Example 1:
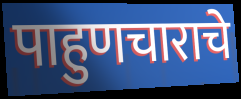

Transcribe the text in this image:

पाहुणचाराचे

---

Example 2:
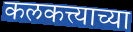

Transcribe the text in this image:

कलकत्त्याच्या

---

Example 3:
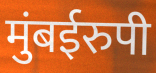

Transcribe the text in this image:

मुंबईरुपी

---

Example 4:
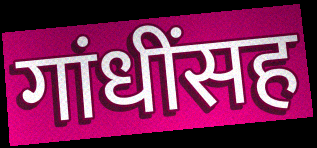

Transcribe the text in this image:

गांधींसह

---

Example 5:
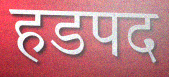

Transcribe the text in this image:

हडपद